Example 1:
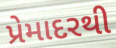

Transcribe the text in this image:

પ્રેમાદરથી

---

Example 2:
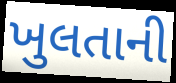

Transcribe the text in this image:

ખુલતાની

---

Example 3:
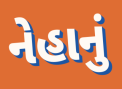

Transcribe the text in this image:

નેહાનું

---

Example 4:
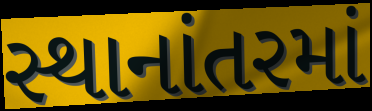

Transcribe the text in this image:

સ્થાનાંતરમાં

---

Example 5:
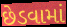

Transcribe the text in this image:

છેડવામાં